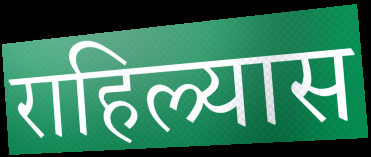
राहिल्यास